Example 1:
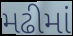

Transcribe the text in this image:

મઢીમાં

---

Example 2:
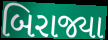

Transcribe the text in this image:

બિરાજ્યા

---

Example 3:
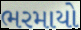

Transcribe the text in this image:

ભરમાયો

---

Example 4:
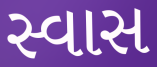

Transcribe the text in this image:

સ્વાસ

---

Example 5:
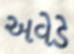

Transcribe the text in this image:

અવેડે